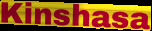
Kinshasa